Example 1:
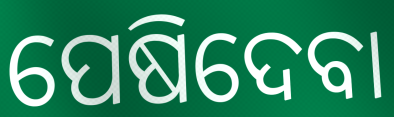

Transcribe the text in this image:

ପେଷିଦେବା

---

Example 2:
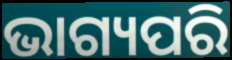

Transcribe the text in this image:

ଭାଗ୍ୟପରି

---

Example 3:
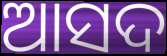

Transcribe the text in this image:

ଆସଦ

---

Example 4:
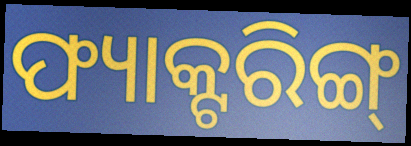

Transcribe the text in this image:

ଫ୍ୟାକ୍ଟରିଙ୍ଗ୍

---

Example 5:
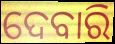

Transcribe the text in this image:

ଦେବାରି